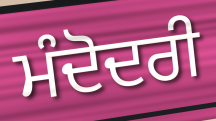
ਮੰਦੋਦਰੀ